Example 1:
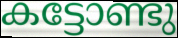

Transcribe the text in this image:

കട്ടോണ്ടു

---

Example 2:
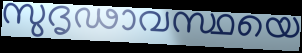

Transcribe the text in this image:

സുദൃഢാവസ്ഥയെ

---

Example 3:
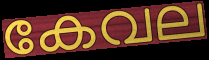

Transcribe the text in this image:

കേവല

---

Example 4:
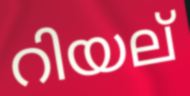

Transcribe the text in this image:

റിയല്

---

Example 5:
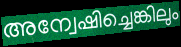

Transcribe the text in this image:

അന്വേഷിച്ചെങ്കിലും